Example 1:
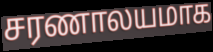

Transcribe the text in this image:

சரணாலயமாக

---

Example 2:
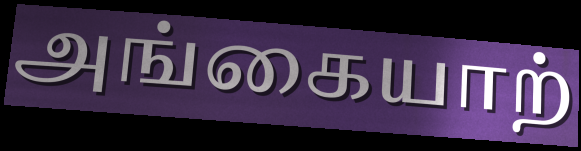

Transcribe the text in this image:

அங்கையாற்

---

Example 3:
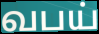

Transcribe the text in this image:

வபய்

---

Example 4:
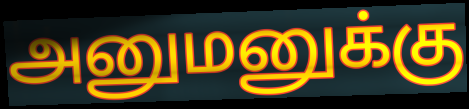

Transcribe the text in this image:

அனுமனுக்கு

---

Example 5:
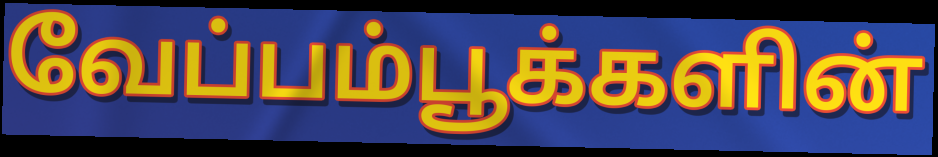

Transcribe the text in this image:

வேப்பம்பூக்களின்